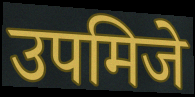
उपमिजे